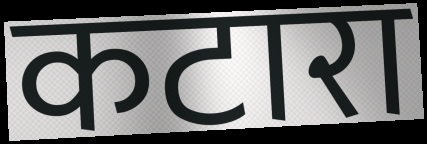
कटारा